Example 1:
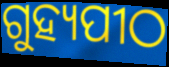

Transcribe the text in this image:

ଗୁହ୍ୟପୀଠ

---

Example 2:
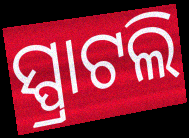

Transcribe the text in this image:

ସ୍ପ୍ରାଟଲି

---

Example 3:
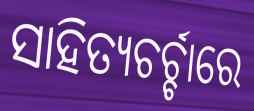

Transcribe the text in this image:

ସାହିତ୍ୟଚର୍ଚ୍ଚାରେ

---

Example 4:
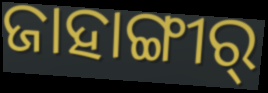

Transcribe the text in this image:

ଜାହାଙ୍ଗୀର୍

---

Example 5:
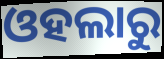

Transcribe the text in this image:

ଓହଲାରୁ